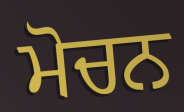
ਮੋਚਨ